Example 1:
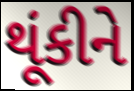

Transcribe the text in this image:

થૂંકીને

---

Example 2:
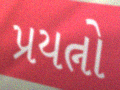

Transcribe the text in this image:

પ્રયત્નો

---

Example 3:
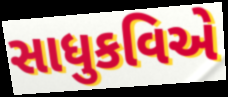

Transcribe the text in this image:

સાધુકવિએ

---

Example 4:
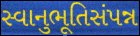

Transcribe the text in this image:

સ્વાનુભૂતિસંપન્ન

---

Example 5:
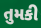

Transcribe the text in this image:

તુમકી